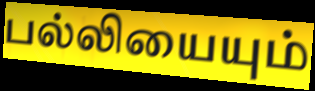
பல்லியையும்